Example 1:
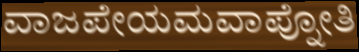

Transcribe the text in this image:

ವಾಜಪೇಯಮವಾಪ್ನೋತಿ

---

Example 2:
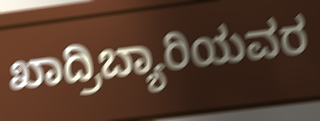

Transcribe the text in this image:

ಖಾದ್ರಿಬ್ಯಾರಿಯವರ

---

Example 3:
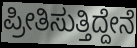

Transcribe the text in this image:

ಪ್ರೀತಿಸುತ್ತಿದ್ದೇನೆ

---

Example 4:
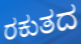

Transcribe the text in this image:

ರಕುತದ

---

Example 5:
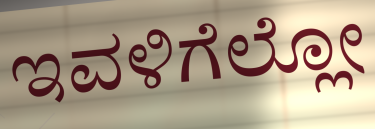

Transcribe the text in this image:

ಇವಳಿಗೆಲ್ಲೋ